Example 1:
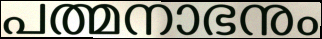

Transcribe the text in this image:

പത്മനാഭനും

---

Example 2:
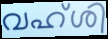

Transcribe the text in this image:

വഹ്ശി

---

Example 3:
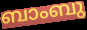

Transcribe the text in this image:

ബാംബു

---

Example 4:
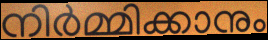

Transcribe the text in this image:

നിർമ്മിക്കാനും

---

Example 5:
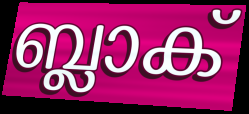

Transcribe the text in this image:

ബ്ലാക്